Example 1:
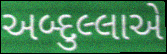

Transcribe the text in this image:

અબ્દુલ્લાએ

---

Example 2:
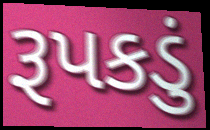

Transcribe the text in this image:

રૂપકડું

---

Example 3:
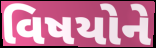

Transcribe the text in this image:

વિષયોને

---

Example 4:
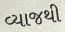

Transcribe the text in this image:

વ્યાજથી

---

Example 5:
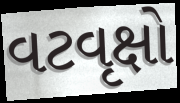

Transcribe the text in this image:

વટવૃક્ષો